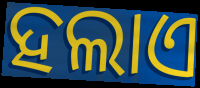
ହଲାଏ